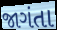
જાગંતા